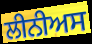
ਲੀਨੀਅਸ